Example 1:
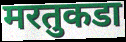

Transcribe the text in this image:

मरतुकडा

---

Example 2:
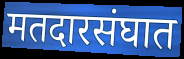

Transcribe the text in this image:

मतदारसंघात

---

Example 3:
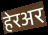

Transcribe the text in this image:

हेरअर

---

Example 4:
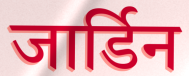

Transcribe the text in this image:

जार्डिन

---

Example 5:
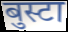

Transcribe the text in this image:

बुस्टा